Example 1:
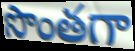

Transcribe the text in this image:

సొంతగా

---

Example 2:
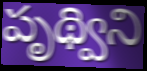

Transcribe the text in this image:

పృథ్విని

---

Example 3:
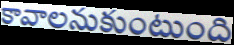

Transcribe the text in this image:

కావాలనుకుంటుంది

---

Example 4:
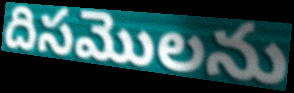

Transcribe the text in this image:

దిసమొలను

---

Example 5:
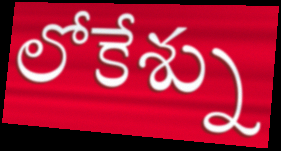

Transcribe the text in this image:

లోకేశ్ను